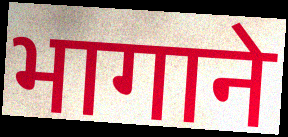
भागाने